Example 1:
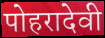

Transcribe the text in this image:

पोहरादेवी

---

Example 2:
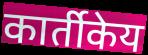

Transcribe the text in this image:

कार्तीकेय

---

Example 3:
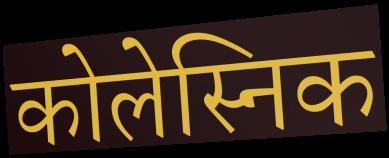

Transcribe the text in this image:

कोलेस्निक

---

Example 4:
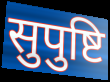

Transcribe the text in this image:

सुपुष्टि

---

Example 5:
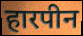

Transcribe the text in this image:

हारपीन